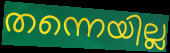
തന്നെയില്ല